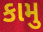
કામુ